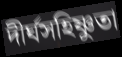
দীর্ঘসহিষ্ণুতা